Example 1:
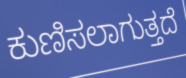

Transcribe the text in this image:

ಕುಣಿಸಲಾಗುತ್ತದೆ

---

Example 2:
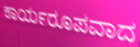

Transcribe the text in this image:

ಕಾರ್ಯರೂಪವಾದ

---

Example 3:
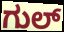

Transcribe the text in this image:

ಗುಲ್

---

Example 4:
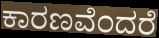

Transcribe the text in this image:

ಕಾರಣವೆಂದರೆ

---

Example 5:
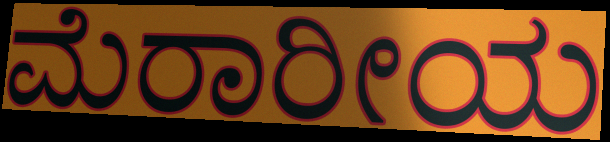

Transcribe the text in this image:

ಮೆರಾರೀಯ